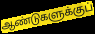
ஆண்டுகளுக்குப்